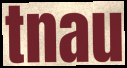
tnau